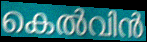
കെൽവിൻ